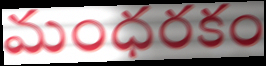
మంధరకం